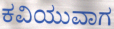
ಕವಿಯುವಾಗ